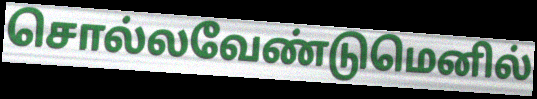
சொல்லவேண்டுமெனில்